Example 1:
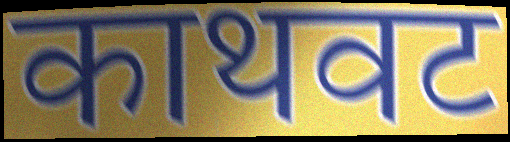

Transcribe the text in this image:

काथवट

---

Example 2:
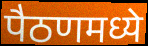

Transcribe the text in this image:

पैठणमध्ये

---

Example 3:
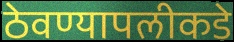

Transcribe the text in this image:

ठेवण्यापलीकडे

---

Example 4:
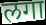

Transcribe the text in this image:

लगा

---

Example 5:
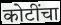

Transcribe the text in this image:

कोटींचा